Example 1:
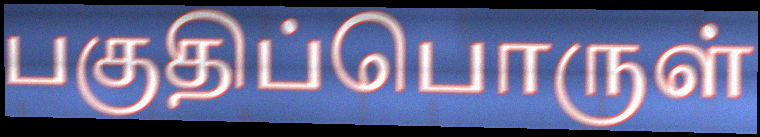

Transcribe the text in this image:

பகுதிப்பொருள்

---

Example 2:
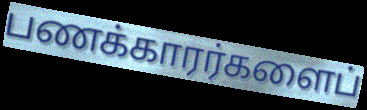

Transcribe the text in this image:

பணக்காரர்களைப்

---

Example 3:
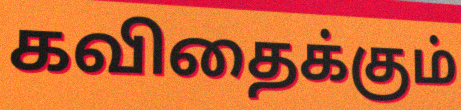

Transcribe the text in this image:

கவிதைக்கும்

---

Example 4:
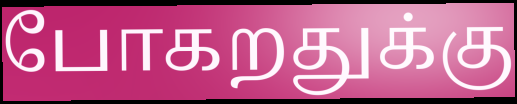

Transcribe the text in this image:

போகறதுக்கு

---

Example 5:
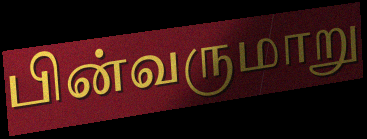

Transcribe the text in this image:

பின்வருமாறு